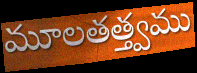
మూలతత్త్వము